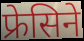
फ्रेसिने